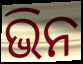
ଭିନ